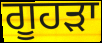
ਗੂਹੜਾ